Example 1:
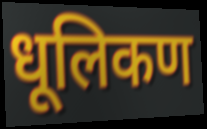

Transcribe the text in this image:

धूलिकण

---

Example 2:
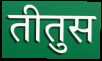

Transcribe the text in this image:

तीतुस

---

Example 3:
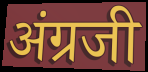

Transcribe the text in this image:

अंग्रजी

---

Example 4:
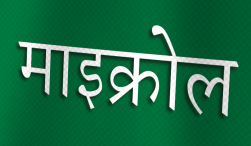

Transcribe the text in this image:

माइक्रोल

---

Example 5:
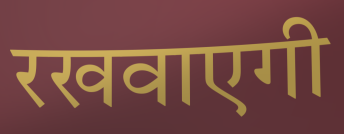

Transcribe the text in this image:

रखवाएगी